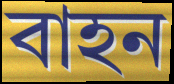
বাহন